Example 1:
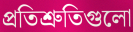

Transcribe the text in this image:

প্রতিশ্রুতিগুলো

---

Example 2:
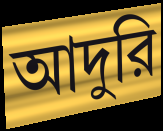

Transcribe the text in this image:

আদুরি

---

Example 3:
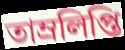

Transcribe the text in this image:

তাম্রলিপ্তি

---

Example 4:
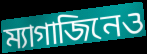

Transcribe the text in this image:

ম্যাগাজিনেও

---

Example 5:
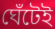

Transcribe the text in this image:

ঘেঁটেই